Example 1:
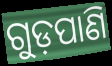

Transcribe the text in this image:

ଗୁଡ଼ପାଣି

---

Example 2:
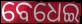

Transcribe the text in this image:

ବେଧେଇ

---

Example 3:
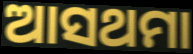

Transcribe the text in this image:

ଆସଥମା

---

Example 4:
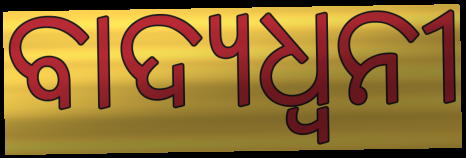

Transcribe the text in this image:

ବାଦ୍ୟଧ୍ୱନୀ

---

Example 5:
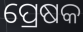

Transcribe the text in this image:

ପ୍ରେଷକ